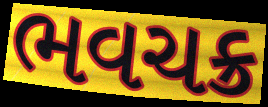
ભવચક્ર